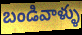
బండివాళ్ళు